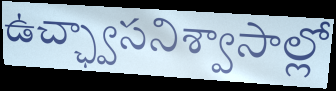
ఉచ్ఛ్వాసనిశ్వాసాల్లో